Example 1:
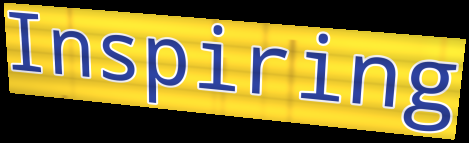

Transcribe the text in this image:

Inspiring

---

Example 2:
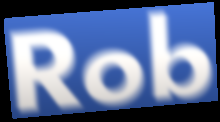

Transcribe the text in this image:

Rob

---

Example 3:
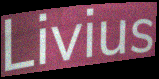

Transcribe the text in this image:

Livius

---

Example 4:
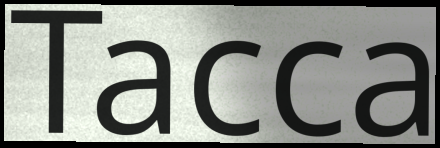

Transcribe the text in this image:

Tacca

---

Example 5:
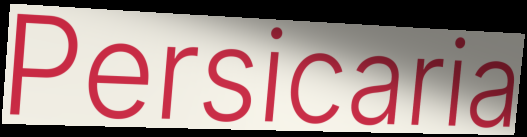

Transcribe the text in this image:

Persicaria